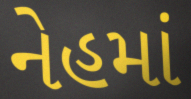
નેહમાં